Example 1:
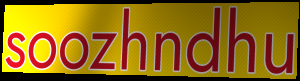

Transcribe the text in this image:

soozhndhu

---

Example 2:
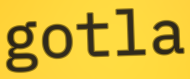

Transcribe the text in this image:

gotla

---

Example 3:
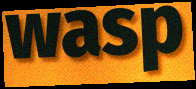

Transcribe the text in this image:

wasp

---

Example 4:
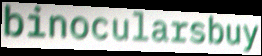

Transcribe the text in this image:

binocularsbuy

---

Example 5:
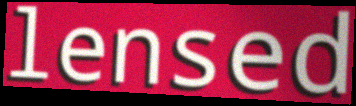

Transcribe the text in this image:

lensed